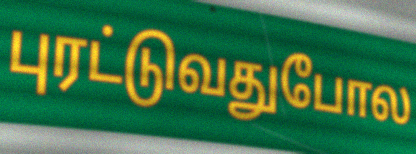
புரட்டுவதுபோல